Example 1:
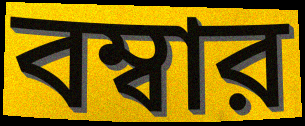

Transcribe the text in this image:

বম্বার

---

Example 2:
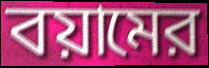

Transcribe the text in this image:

বয়ামের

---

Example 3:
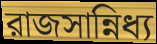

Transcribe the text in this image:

রাজসান্নিধ্য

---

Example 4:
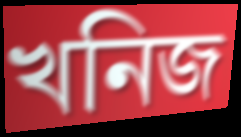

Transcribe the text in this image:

খনিজ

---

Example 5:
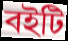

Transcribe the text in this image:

বইটি